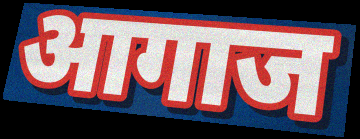
आगाज